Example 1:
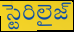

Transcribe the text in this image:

స్టెరిలైజ్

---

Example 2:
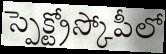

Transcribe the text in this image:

స్పెక్ట్రోస్కోపీలో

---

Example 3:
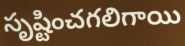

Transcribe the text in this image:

సృష్టించగలిగాయి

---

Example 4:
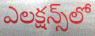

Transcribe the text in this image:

ఎలక్షన్స్‌లో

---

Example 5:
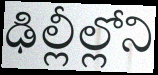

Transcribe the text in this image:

ఢిల్లీల్లోని